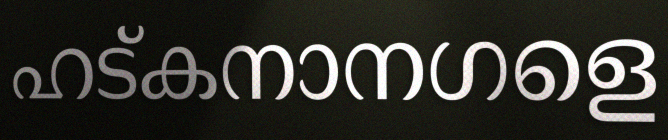
ഹട്കനാനഗളെ